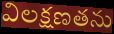
విలక్షణతను